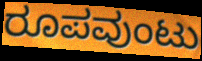
ರೂಪವುಂಟು